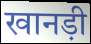
खानड़ी